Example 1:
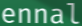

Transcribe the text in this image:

ennal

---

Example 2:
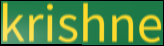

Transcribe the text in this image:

krishne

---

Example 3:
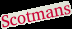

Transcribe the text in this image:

Scotmans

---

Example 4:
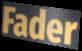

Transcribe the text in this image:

Fader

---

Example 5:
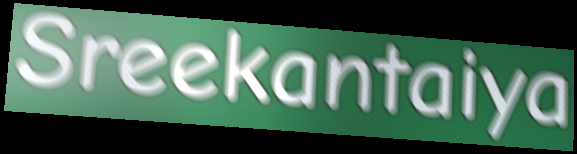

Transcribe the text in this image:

Sreekantaiya